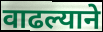
वाढल्याने